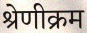
श्रेणीक्रम